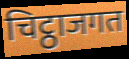
चिट्ठाजगत